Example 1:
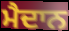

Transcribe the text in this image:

ਮੈਦਾਨ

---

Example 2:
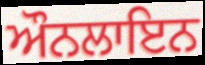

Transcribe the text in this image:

ਔਨਲਾਇਨ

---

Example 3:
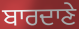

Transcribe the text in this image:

ਬਾਰਦਾਣੇ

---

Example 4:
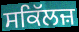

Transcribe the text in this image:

ਸਕਿੱਲਜ਼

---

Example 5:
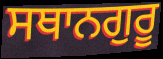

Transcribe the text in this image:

ਸਥਾਨਗੁਰੂ